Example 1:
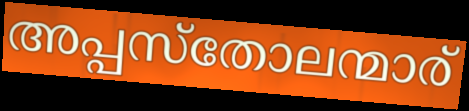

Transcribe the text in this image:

അപ്പസ്തോലന്മാര്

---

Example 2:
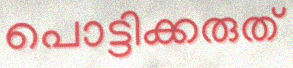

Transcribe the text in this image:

പൊട്ടിക്കരുത്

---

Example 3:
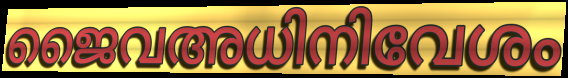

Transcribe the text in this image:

ജൈവഅധിനിവേശം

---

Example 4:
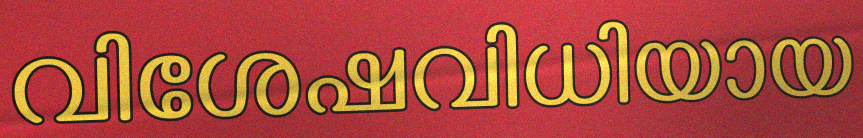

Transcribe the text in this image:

വിശേഷവിധിയായ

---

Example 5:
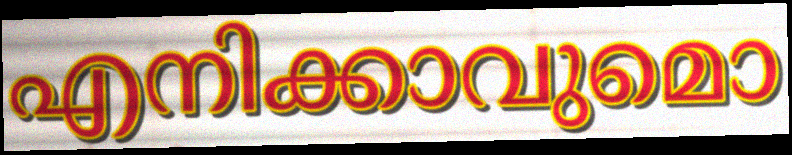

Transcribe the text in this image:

എനിക്കാവുമൊ